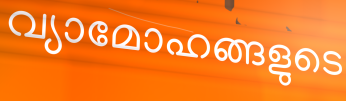
വ്യാമോഹങ്ങളുടെ